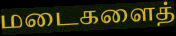
மடைகளைத்